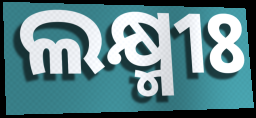
ଲକ୍ଷ୍ମୀଃ